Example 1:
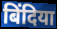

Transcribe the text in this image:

बिंदिया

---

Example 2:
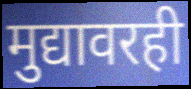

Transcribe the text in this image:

मुद्यावरही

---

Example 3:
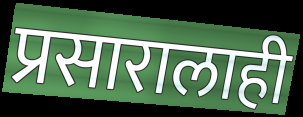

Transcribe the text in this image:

प्रसारालाही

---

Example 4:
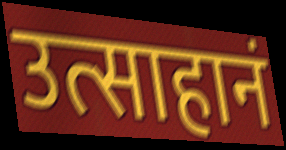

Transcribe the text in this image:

उत्साहानं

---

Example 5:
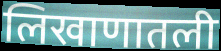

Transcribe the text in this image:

लिखाणातली